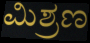
ಮಿಶ್ರಣ